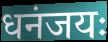
धनंजयः